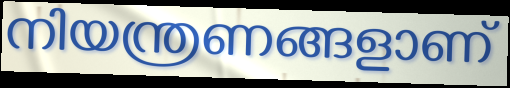
നിയന്ത്രണങ്ങളാണ്